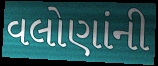
વલોણાંની